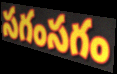
సగంసగం